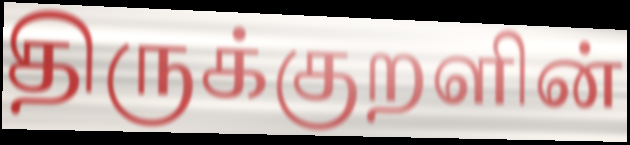
திருக்குறளின்